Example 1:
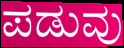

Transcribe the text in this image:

ಪಡುವು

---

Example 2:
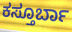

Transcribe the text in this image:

ಕಸ್ತೂರ್ಬಾ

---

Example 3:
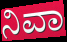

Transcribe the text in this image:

ನಿವಾ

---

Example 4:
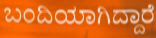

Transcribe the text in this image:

ಬಂದಿಯಾಗಿದ್ದಾರೆ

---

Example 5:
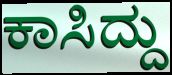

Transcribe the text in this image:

ಕಾಸಿದ್ದು